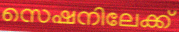
സെഷനിലേക്ക്